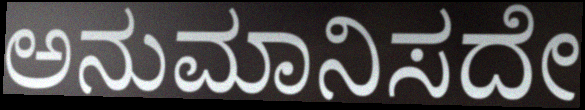
ಅನುಮಾನಿಸದೇ